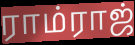
ராம்ராஜ்